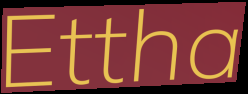
Ettha